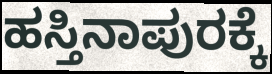
ಹಸ್ತಿನಾಪುರಕ್ಕೆ